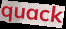
quack